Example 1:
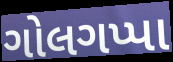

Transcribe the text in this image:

ગોલગપ્પા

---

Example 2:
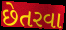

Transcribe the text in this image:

છેતરવા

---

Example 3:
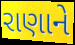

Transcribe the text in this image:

રાણાને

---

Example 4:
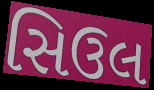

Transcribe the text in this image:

સિઉલ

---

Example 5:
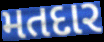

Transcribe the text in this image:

મતદાર